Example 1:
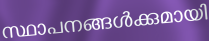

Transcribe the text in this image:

സ്ഥാപനങ്ങൾക്കുമായി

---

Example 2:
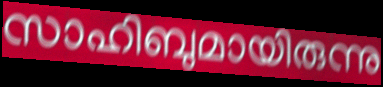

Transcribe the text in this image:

സാഹിബുമായിരുന്നു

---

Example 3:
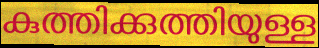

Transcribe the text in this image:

കുത്തിക്കുത്തിയുള്ള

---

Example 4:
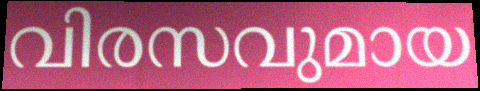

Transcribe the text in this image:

വിരസവുമായ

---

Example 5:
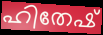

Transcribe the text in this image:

ഹിതേഷ്